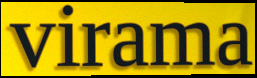
virama